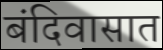
बंदिवासात